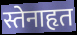
स्तेनाहृत